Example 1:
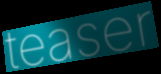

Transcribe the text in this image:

teaser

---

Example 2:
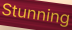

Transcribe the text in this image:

Stunning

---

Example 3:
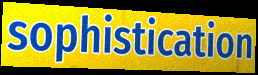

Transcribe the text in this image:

sophistication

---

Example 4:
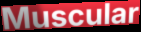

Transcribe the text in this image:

Muscular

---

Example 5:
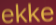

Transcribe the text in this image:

ekke